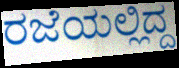
ರಜೆಯಲ್ಲಿದ್ದ